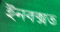
ইনবক্সত